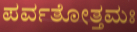
ಪರ್ವತೋತ್ತಮಃ